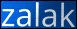
zalak